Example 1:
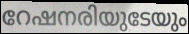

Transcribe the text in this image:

റേഷനരിയുടേയും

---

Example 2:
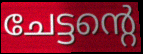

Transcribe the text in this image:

ചേട്ടന്റെ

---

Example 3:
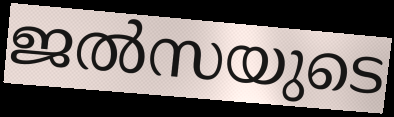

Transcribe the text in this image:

ജൽസയുടെ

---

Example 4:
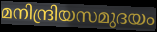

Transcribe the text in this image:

മനിന്ദ്രിയസമുദയം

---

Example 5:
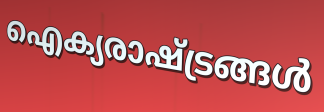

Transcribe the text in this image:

ഐക്യരാഷ്ട്രങ്ങൾ